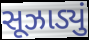
સૂઝાડ્યું